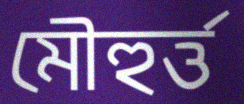
মৌহুৰ্ত্ত